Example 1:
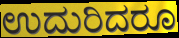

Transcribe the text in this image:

ಉದುರಿದರೂ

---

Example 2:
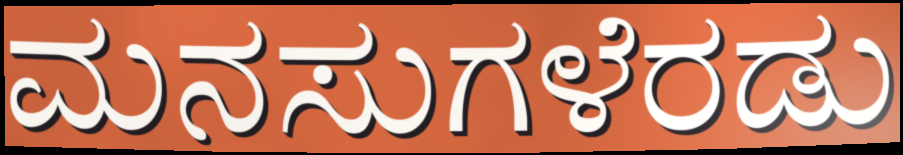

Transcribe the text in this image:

ಮನಸುಗಳೆರಡು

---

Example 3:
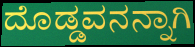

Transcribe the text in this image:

ದೊಡ್ಡವನನ್ನಾಗಿ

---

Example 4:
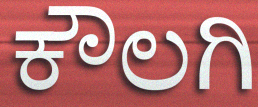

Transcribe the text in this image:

ಕೌಲಗಿ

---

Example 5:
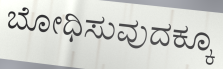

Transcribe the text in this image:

ಬೋಧಿಸುವುದಕ್ಕೂ